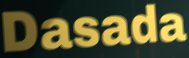
Dasada